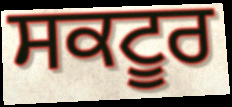
ਸਕਟੂਰ